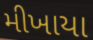
મીખાયા